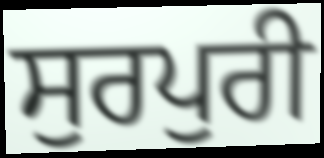
ਸੁਰਪੁਰੀ